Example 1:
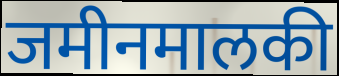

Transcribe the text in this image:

जमीनमालकी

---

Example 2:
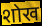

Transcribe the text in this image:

शोख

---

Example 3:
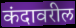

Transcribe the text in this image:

कंदावरील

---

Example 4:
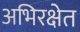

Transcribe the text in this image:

अभिरक्षेत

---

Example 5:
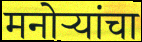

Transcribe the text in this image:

मनोर्‍यांचा